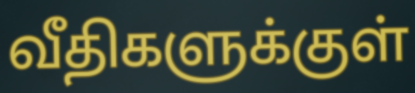
வீதிகளுக்குள்